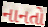
નાનતો